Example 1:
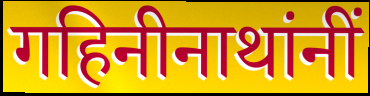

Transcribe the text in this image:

गहिनीनाथांनीं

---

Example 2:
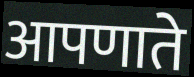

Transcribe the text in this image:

आपणाते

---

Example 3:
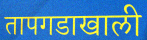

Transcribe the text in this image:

तापगडाखाली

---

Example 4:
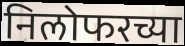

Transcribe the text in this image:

निलोफरच्या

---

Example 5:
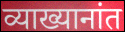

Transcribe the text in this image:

व्याख्यानांत